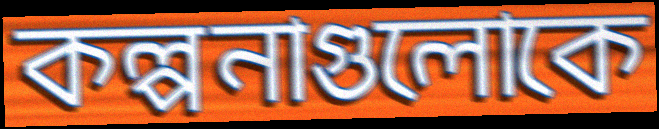
কল্পনাগুলোকে